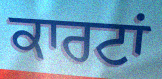
ਕਾਰਟਾਂ